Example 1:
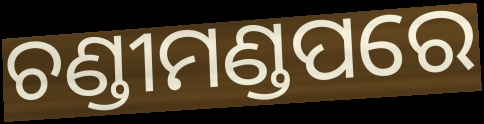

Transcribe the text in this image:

ଚଣ୍ଡୀମଣ୍ଡପରେ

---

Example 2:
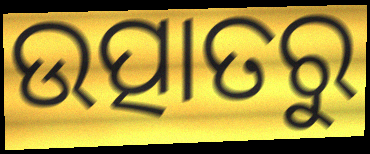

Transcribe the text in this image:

ଉତ୍ପାତରୁ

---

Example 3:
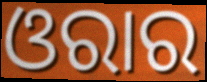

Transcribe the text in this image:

ଓରାର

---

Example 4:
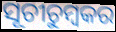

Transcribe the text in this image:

ସୂଚୀଚୁମ୍ବକର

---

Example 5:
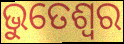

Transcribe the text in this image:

ଭୁତେଶ୍ୱର